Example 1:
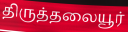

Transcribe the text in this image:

திருத்தலையூர்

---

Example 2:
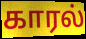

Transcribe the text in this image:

காரல்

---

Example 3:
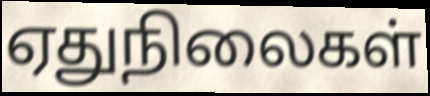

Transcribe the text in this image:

ஏதுநிலைகள்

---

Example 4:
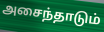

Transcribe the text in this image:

அசைந்தாடும்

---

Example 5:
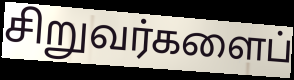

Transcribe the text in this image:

சிறுவர்களைப்